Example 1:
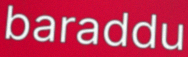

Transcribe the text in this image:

baraddu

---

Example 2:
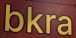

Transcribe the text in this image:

bkra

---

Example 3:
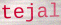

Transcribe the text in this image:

tejal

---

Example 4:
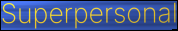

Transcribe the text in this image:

Superpersonal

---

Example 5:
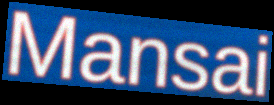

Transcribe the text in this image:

Mansai